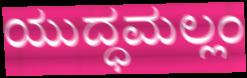
ಯುದ್ಧಮಲ್ಲಂ